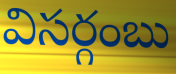
విసర్గంబు